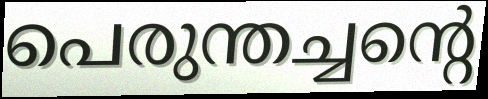
പെരുന്തച്ചന്റെ